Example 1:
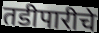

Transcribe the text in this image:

तडीपारीचे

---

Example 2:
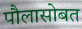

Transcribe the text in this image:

पौलासोबत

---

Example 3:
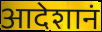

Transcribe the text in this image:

आदेशानं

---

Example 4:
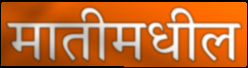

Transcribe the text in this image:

मातीमधील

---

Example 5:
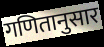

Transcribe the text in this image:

गणितानुसार